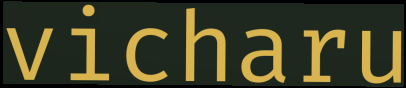
vicharu